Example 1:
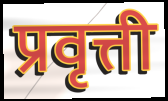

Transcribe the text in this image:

प्रवृत्ती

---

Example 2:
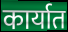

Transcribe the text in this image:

कार्यात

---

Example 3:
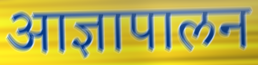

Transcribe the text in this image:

आज्ञापालन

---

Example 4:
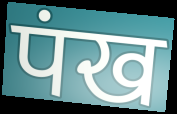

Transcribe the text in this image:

पंख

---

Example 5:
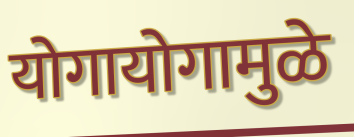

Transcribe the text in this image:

योगायोगामुळे